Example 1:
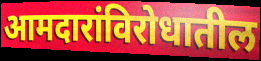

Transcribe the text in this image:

आमदारांविरोधातील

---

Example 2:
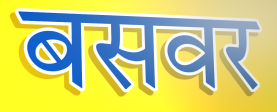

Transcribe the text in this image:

बसवर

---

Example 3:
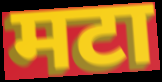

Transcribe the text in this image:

मटा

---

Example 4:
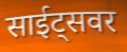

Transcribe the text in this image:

साईट्सवर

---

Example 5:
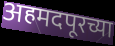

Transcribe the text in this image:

अहमदपूरच्या